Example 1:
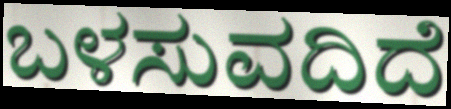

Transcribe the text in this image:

ಬಳಸುವದಿದೆ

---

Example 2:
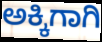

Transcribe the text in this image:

ಅಕ್ಕಿಗಾಗಿ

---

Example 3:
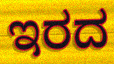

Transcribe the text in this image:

ಇರದ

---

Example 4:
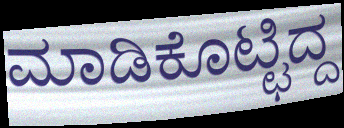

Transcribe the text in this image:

ಮಾಡಿಕೊಟ್ಟಿದ್ದ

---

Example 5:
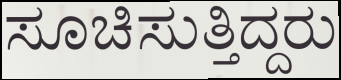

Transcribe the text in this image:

ಸೂಚಿಸುತ್ತಿದ್ದರು